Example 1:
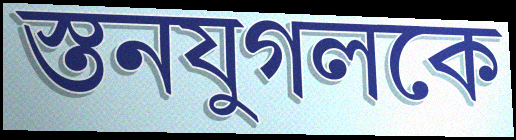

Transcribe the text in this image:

স্তনযুগলকে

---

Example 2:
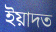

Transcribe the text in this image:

ইয়াদত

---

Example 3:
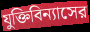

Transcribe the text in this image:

যুক্তিবিন্যাসের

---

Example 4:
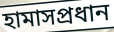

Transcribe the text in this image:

হামাসপ্রধান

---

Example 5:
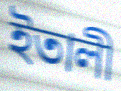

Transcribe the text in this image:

ইতালী